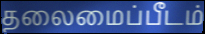
தலைமைப்பீடம்